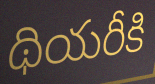
థియరీకి